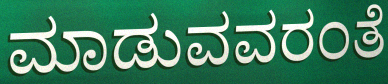
ಮಾಡುವವರಂತೆ